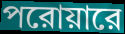
পরোয়ারে